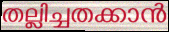
തല്ലിച്ചതക്കാൻ